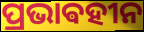
ପ୍ରଭାଵହୀନ